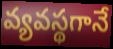
వ్యవస్థగానే